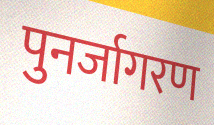
पुनर्जागरण